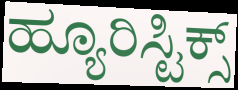
ಹ್ಯೂರಿಸ್ಟಿಕ್ಸ್